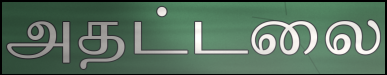
அதட்டலை